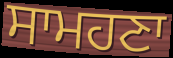
ਸਾਮਹਣਾ